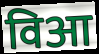
विआ